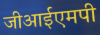
जीआईएमपी